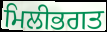
ਮਿਲੀਭਗਤ